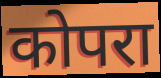
कोपरा